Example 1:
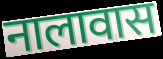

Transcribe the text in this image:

नालावास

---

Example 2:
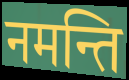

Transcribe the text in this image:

नमन्ति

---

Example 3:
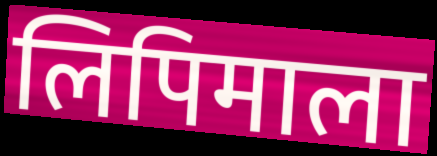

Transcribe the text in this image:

लिपिमाला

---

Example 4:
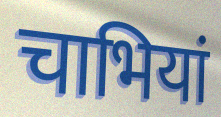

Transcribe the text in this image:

चाभियां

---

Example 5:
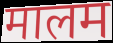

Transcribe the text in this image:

मालम